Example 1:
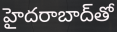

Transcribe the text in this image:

హైదరాబాద్‌తో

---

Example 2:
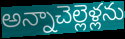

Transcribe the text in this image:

అన్నాచెల్లెళ్లను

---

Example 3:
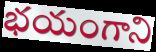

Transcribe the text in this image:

భయంగాని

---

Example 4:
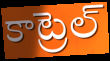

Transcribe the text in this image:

కాట్రెల్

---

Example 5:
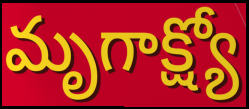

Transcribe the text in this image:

మృగాక్ష్యో